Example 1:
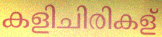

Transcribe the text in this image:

കളിചിരികള്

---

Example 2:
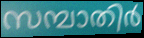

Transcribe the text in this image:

സമ്പാതിർ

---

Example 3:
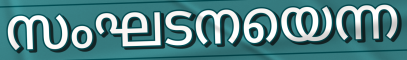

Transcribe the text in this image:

സംഘടനയെന്ന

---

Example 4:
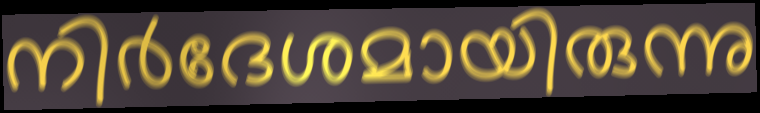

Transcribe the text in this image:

നിർദേശമായിരുന്നു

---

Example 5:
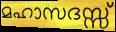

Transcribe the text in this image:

മഹാസദസ്സ്